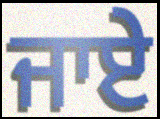
ਜਾਏੇ